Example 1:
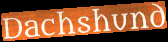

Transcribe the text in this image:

Dachshund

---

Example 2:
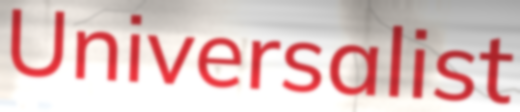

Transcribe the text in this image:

Universalist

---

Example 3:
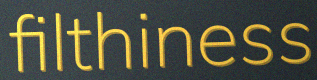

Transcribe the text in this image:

filthiness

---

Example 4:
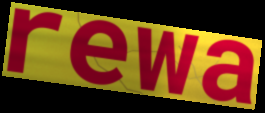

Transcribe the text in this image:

rewa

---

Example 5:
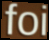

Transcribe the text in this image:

foi